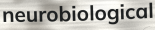
neurobiological